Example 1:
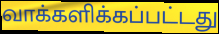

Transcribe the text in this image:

வாக்களிக்கப்பட்டது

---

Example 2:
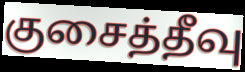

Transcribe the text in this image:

குசைத்தீவு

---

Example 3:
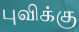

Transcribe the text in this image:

புவிக்கு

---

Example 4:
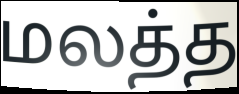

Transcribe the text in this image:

மலத்த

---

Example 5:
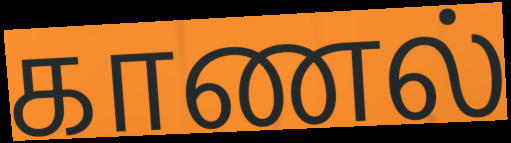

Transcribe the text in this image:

காணல்